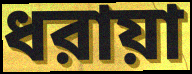
ধরায়া